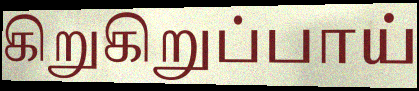
கிறுகிறுப்பாய்